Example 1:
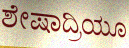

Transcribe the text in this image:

ಶೇಷಾದ್ರಿಯೂ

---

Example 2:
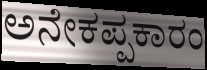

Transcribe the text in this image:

ಅನೇಕಪ್ಪಕಾರಂ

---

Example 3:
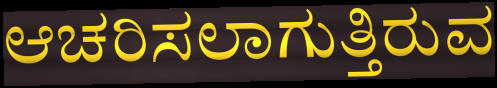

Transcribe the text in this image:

ಆಚರಿಸಲಾಗುತ್ತಿರುವ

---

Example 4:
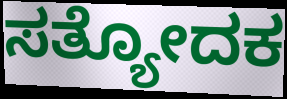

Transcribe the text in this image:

ಸತ್ಯೋದಕ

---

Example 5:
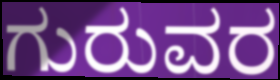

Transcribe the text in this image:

ಗುರುವರ